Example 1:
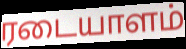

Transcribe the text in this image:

ரடையாளம்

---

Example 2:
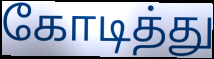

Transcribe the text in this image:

கோடித்து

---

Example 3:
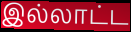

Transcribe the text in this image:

இல்லாட்ட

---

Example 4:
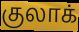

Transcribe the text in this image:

குலாக்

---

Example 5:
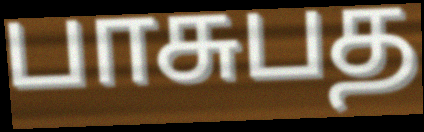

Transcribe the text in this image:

பாசுபத